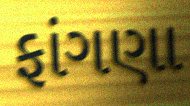
ફાંગણા